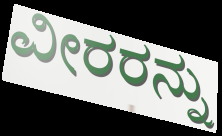
ವೀರರನ್ನು